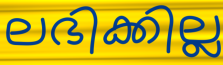
ലഭിക്കില്ല